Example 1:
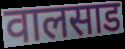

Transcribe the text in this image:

वालसाड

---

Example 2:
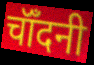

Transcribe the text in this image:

चॉँदनी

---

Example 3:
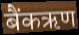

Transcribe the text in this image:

बैंकऋण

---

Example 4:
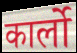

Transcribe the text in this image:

कार्लो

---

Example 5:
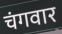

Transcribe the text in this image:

चंगवार